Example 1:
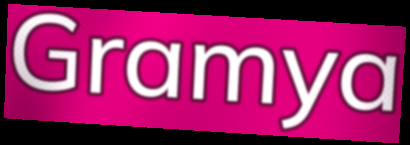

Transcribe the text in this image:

Gramya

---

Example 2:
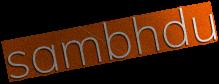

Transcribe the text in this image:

sambhdu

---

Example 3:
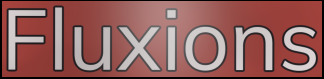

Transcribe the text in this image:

Fluxions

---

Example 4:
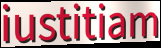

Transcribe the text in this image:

iustitiam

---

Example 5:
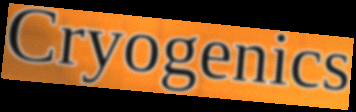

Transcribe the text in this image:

Cryogenics